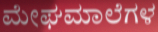
ಮೇಘಮಾಲೆಗಳ